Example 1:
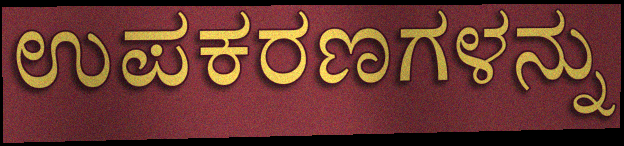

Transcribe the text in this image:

ಉಪಕರಣಗಳನ್ನು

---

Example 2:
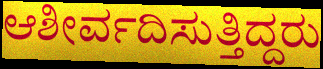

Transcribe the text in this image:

ಆಶೀರ್ವದಿಸುತ್ತಿದ್ದರು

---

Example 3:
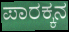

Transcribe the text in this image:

ಪಾರಕ್ಕನ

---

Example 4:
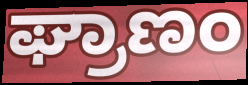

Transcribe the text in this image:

ಘ್ರಾಣಂ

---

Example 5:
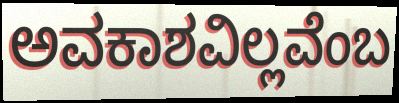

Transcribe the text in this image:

ಅವಕಾಶವಿಲ್ಲವೆಂಬ